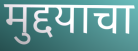
मुद्दयाचा